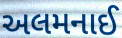
અલમનાઈ